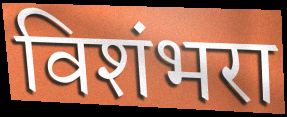
विशंभरा